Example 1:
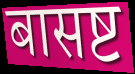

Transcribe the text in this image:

बासष्ट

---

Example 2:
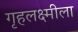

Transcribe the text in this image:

गृहलक्ष्मीला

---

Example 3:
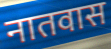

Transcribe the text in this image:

नातवास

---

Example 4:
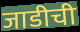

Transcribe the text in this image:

जाडीची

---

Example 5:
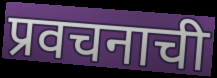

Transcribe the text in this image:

प्रवचनाची